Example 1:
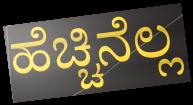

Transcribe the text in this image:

ಹೆಚ್ಚಿನೆಲ್ಲ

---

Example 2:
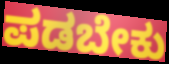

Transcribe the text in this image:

ಪಡಬೇಕು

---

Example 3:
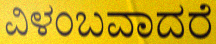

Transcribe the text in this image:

ವಿಳಂಬವಾದರೆ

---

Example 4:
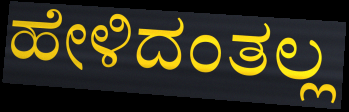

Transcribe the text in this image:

ಹೇಳಿದಂತಲ್ಲ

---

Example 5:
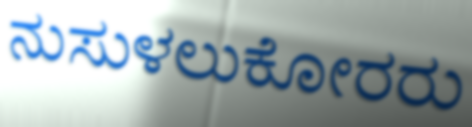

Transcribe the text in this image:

ನುಸುಳಲುಕೋರರು